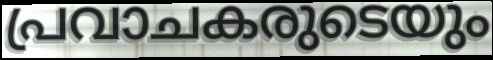
പ്രവാചകരുടെയും